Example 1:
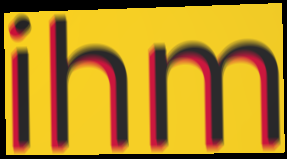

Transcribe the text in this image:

ihm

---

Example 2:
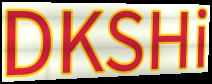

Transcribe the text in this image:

DKSHi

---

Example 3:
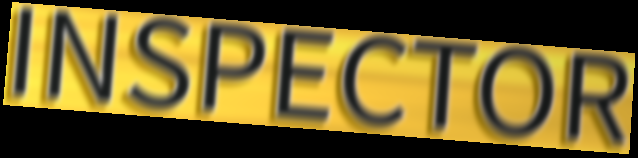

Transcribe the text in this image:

INSPECTOR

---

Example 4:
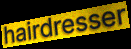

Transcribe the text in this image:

hairdresser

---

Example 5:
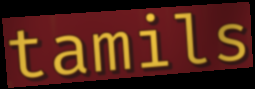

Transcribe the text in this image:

tamils